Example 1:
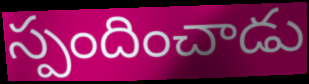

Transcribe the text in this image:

స్పందించాడు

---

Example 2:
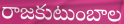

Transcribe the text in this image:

రాజకుటుంబాల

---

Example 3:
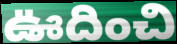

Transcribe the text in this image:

ఊదించి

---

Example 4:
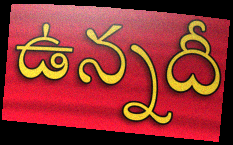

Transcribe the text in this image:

ఉన్నదీ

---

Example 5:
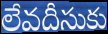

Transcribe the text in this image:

లేవదీసుకు